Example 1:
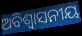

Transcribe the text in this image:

ଅବିଶ୍ୱାସନୀୟ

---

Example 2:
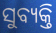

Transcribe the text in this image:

ସୁବ୍ୟକ୍ତି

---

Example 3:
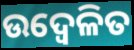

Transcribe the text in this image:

ଉଦ୍ବେଳିତ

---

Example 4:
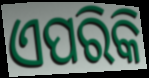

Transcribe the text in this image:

ଏପରିକି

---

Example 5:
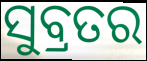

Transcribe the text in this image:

ସୁବ୍ରତର